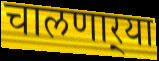
चालणार्या